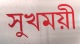
সুখময়ী